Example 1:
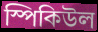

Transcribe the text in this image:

স্পিকিউল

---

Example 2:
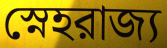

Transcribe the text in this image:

স্নেহরাজ্য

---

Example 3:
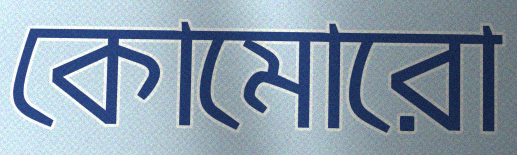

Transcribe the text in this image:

কোমোরো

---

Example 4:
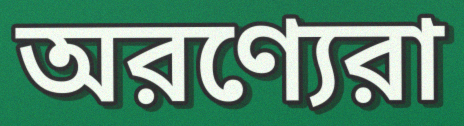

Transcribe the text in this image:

অরণ্যেরা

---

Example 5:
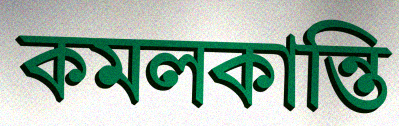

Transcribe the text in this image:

কমলকান্তি